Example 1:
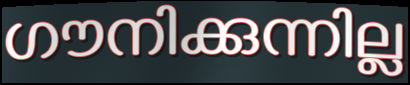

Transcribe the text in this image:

ഗൗനിക്കുന്നില്ല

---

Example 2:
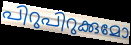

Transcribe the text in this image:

പിറുപിറുക്കുമോ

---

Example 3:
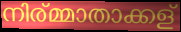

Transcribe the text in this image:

നിര്മ്മാതാക്കള്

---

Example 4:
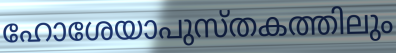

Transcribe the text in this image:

ഹോശേയാപുസ്തകത്തിലും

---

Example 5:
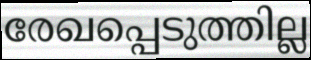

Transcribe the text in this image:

രേഖപ്പെടുത്തില്ല